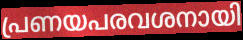
പ്രണയപരവശനായി